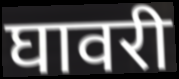
घावरी